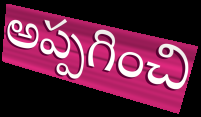
అప్పగించి